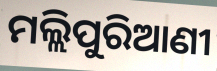
ମଲ୍ଲିପୁରିଆଣୀ